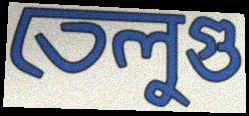
তেলুগু